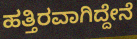
ಹತ್ತಿರವಾಗಿದ್ದೇನೆ